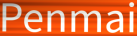
Penmai